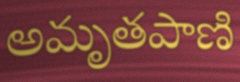
అమృతపాణి